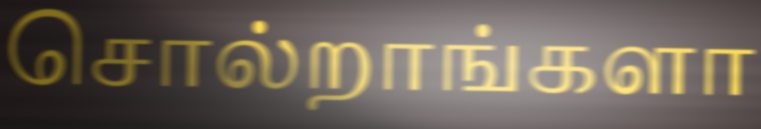
சொல்றாங்களா